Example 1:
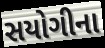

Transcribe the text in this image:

સયોગીના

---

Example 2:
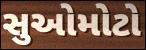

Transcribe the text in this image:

સુઓમોટો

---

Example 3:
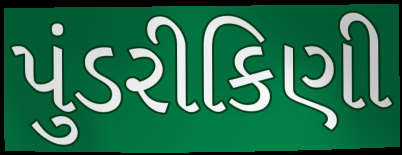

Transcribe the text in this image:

પુંડરીકિણી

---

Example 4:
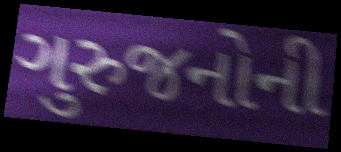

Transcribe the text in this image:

ગુરુજનોની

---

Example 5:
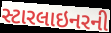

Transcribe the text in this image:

સ્ટારલાઇનરની